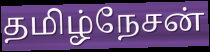
தமிழ்நேசன்